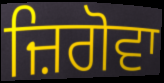
ਜ਼ਿਗੋਵਾ